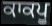
ਕਾਕਪੂ